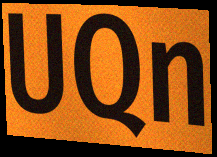
UQn